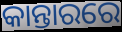
କାନ୍ତାରରେ